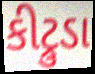
કીટ્રુડા